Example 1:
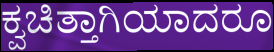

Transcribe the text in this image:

ಕ್ವಚಿತ್ತಾಗಿಯಾದರೂ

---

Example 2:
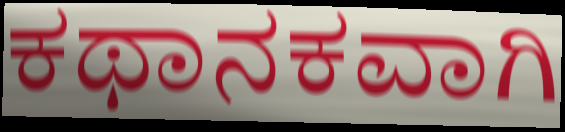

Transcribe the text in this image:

ಕಥಾನಕವಾಗಿ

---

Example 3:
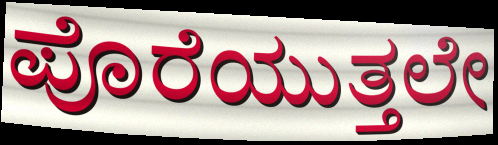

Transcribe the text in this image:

ಪೊರೆಯುತ್ತಲೇ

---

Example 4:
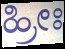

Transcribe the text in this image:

ಹ್ರೀಃ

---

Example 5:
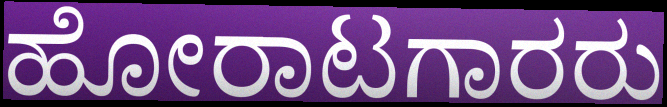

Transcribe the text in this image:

ಹೋರಾಟಗಾರರು